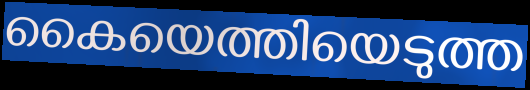
കൈയെത്തിയെടുത്ത